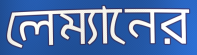
লেম্যানের